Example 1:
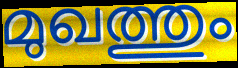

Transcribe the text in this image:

മുഖത്തും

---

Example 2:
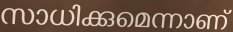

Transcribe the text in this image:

സാധിക്കുമെന്നാണ്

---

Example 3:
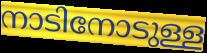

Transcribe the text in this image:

നാടിനോടുള്ള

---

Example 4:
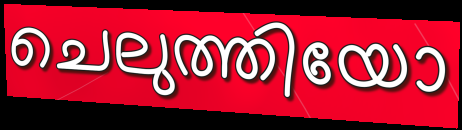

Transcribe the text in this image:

ചെലുത്തിയോ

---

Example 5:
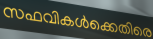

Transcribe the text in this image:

സഫവികൾക്കെതിരെ